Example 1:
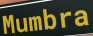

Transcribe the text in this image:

Mumbra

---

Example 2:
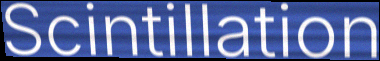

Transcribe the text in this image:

Scintillation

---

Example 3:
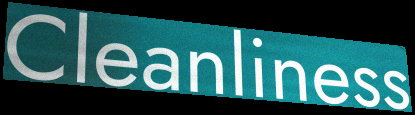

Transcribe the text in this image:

Cleanliness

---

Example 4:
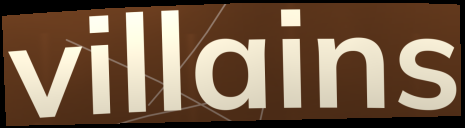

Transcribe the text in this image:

villains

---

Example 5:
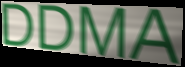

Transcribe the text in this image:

DDMA